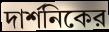
দার্শনিকের